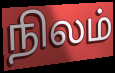
நிலம்